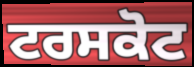
ਟਰਸਕੋਟ